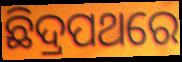
ଛିଦ୍ରପଥରେ